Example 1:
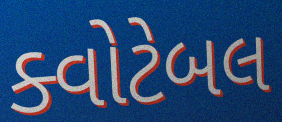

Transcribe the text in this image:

ક્વોટેબલ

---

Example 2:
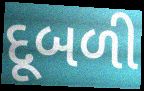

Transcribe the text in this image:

દૂબળી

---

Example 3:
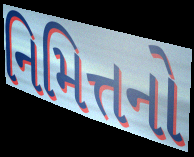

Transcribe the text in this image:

નિમિત્તનો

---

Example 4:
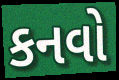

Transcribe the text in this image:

કનવો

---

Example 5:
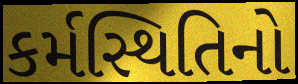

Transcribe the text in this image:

કર્મસ્થિતિનો